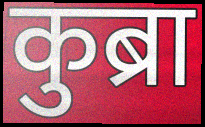
कुब्रा